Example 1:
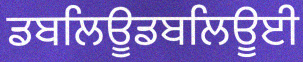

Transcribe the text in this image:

ਡਬਲਿਊਡਬਲਿਊਈ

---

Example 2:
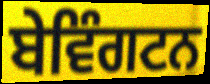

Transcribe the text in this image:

ਬੇਵਿੰਗਟਨ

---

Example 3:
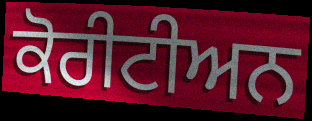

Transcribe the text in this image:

ਕੋਰੀਟੀਅਨ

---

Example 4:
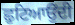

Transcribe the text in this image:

ਛੁਟਿਆਉਂਦੀ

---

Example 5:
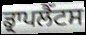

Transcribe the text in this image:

ਡ੍ਰਾਪਲੈੱਟਸ